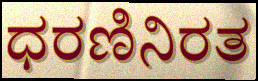
ಧರಣಿನಿರತ